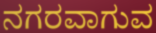
ನಗರವಾಗುವ